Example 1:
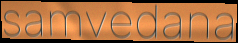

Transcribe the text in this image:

samvedana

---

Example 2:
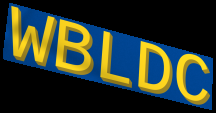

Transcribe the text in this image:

WBLDC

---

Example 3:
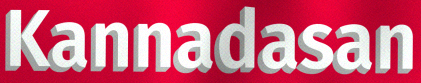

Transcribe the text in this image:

Kannadasan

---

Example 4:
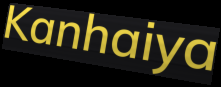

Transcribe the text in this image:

Kanhaiya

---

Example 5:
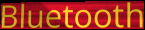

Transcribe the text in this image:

Bluetooth